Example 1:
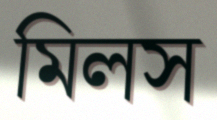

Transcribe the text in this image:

মিলস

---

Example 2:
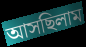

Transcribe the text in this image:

আসছিলাম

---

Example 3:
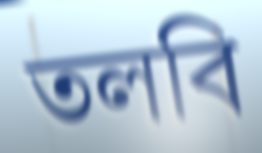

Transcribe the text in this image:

তলবি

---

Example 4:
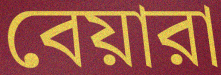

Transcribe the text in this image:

বেয়ারা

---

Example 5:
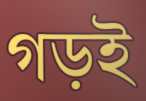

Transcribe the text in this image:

গড়ই